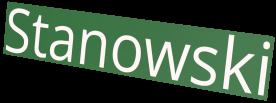
Stanowski